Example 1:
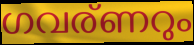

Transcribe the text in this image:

ഗവര്ണറും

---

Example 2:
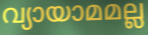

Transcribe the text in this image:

വ്യായാമമല്ല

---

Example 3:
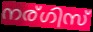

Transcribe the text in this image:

നര്ഗിസ്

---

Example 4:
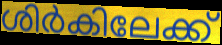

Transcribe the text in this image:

ശിർകിലേക്ക്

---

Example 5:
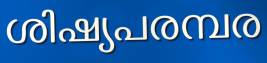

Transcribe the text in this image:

ശിഷ്യപരമ്പര